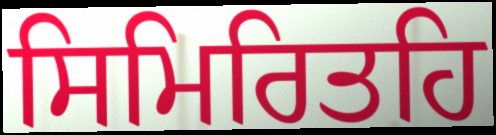
ਸਿਮਿਰਿਤਹਿ